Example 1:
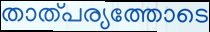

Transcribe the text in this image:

താത്പര്യത്തോടെ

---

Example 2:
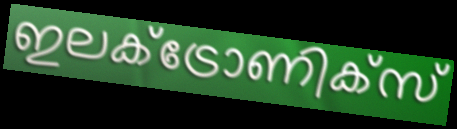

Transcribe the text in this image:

ഇലക്ട്രോണിക്സ്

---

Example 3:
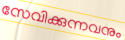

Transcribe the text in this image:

സേവിക്കുന്നവനും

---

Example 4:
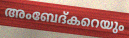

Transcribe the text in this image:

അംബേദ്കറെയും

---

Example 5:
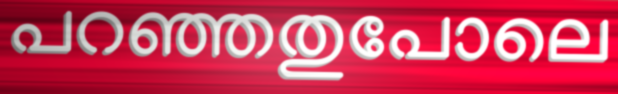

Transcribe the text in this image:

പറഞ്ഞതുപോലെ